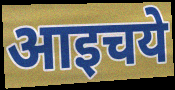
आइचये